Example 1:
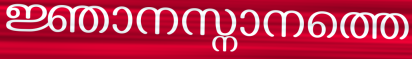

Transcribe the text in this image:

ജ്ഞാനസ്നാനത്തെ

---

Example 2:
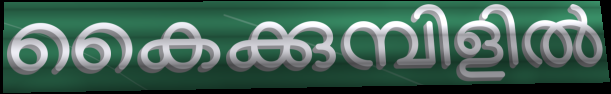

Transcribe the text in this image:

കൈക്കുമ്പിളിൽ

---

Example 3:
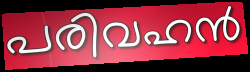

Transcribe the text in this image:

പരിവഹൻ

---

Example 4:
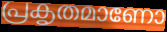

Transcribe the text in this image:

പ്രകൃതമാണോ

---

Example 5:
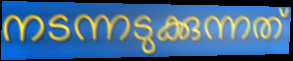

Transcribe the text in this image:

നടന്നടുക്കുന്നത്